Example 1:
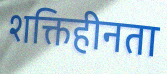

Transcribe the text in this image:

शक्तिहीनता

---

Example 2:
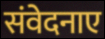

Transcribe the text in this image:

संवेदनाए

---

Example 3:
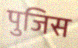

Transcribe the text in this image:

पुजिस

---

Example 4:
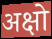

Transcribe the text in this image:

अक्षो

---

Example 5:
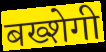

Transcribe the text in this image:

बख्शेगी